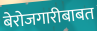
बेरोजगारीबाबत